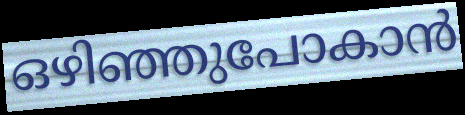
ഒഴിഞ്ഞുപോകാൻ